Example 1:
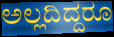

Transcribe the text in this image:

ಅಲ್ಲದಿದ್ದರೂ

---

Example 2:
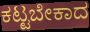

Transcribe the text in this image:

ಕಟ್ಟಬೇಕಾದ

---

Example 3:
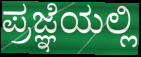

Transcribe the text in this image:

ಪ್ರಜ್ಞೆಯಲ್ಲಿ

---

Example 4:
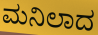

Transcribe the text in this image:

ಮನಿಲಾದ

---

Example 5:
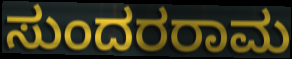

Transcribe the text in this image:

ಸುಂದರರಾಮ